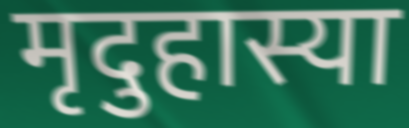
मृदुहास्या